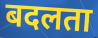
बदलता